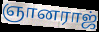
ஞானராஜ்